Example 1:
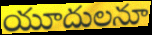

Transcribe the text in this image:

యూదులనూ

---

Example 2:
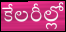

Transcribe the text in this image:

కేలరీల్లో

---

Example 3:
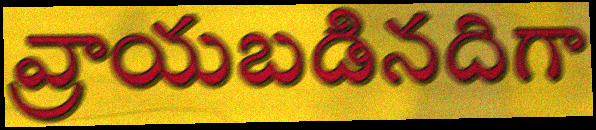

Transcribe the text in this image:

వ్రాయబడినదిగా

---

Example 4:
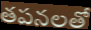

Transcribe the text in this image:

తపనలతో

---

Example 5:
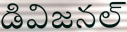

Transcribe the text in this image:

డివిజనల్